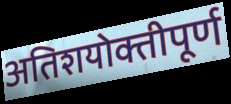
अतिशयोक्तीपूर्ण